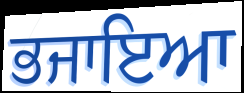
ਭਜਾਇਆ